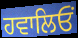
ਹਵਾਲਿਓਂ